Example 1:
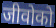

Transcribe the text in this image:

जीवोको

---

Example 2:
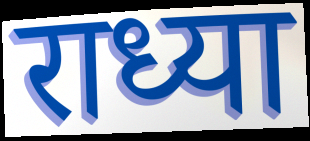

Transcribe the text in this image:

राध्या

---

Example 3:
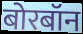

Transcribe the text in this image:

बोरबॉन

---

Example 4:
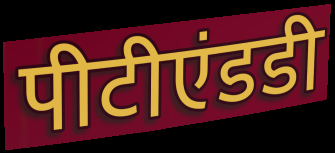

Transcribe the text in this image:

पीटीएंडडी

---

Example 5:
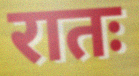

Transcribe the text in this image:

रातः